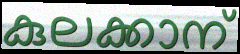
കുലക്കാന്